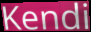
Kendi